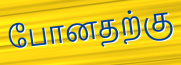
போனதற்கு